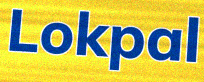
Lokpal